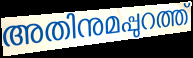
അതിനുമപ്പുറത്ത്